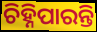
ଚିହ୍ନିପାରନ୍ତି